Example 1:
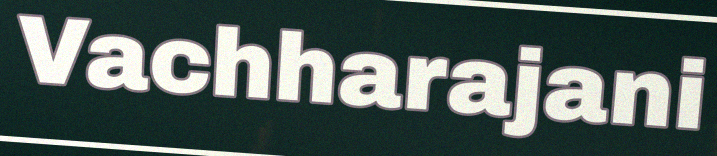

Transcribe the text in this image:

Vachharajani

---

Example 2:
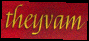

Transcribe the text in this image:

theyvam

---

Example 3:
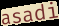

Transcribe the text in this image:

asadi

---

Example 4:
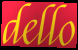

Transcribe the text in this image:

dello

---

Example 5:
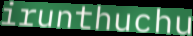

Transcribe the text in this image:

irunthuchu